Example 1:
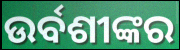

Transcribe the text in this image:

ଉର୍ବଶୀଙ୍କର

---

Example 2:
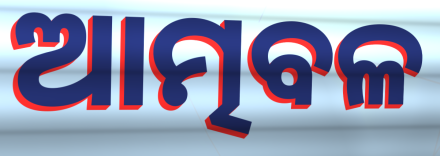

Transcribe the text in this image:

ଆତ୍ମବଳ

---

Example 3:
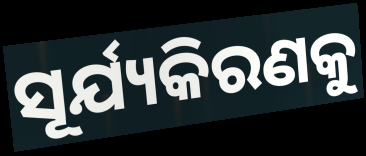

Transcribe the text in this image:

ସୂର୍ଯ୍ୟକିରଣକୁ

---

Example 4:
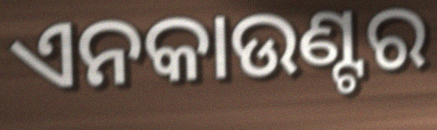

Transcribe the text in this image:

ଏନକାଉଣ୍ଟର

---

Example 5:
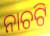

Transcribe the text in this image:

ନାଚଟି